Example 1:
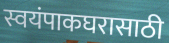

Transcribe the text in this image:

स्वयंपाकघरासाठी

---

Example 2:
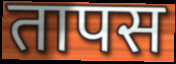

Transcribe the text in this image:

तापस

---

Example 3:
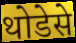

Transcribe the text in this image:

थोडेसे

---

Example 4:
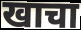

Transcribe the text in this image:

खाचा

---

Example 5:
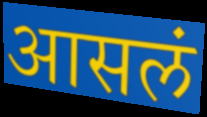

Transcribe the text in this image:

आसलं